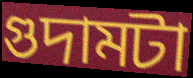
গুদামটা